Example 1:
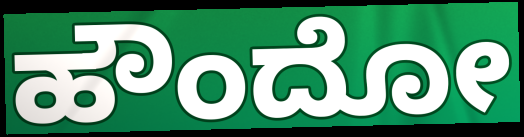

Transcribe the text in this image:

ಹೌಂದೋ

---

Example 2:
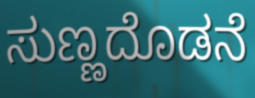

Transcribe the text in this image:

ಸುಣ್ಣದೊಡನೆ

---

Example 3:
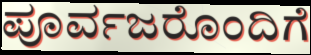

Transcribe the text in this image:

ಪೂರ್ವಜರೊಂದಿಗೆ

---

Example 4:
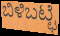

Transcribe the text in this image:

ಬಿಳಿಬಟ್ಟೆ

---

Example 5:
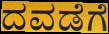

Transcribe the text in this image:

ದವಡೆಗೆ